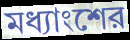
মধ্যাংশের